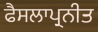
ਫੈਸਲਾਪ੍ਰਨੀਤ